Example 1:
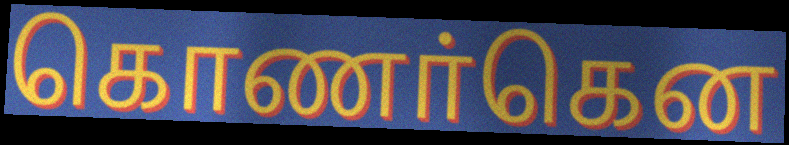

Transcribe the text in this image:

கொணர்கென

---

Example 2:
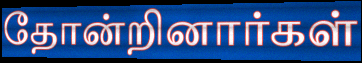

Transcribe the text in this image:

தோன்றினார்கள்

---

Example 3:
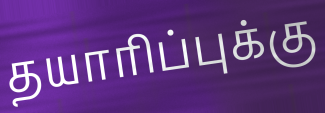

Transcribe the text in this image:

தயாரிப்புக்கு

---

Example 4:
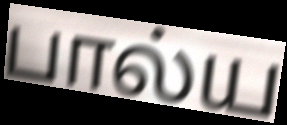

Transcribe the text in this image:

பால்ய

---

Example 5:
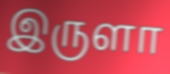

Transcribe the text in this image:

இருளா